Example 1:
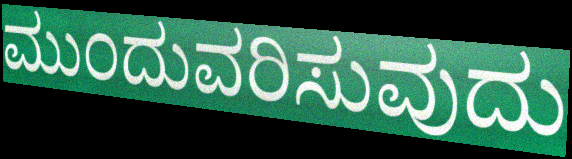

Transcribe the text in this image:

ಮುಂದುವರಿಸುವುದು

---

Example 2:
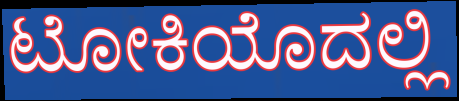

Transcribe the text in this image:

ಟೋಕಿಯೊದಲ್ಲಿ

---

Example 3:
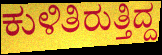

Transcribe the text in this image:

ಕುಳಿತಿರುತ್ತಿದ್ದ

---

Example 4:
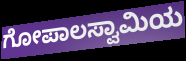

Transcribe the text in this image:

ಗೋಪಾಲಸ್ವಾಮಿಯ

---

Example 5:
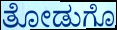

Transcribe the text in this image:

ತೋಡುಗೊ